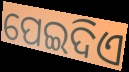
ପେଇଦିଏ